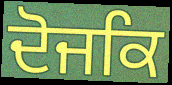
ਦੋਜਕਿ